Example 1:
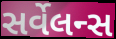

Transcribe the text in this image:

સર્વેલન્સ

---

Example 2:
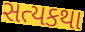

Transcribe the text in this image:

સત્યકથા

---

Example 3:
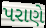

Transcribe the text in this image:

પરાણે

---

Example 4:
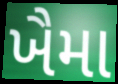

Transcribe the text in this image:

ખૈમા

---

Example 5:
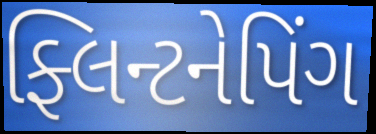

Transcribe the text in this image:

ફ્લિન્ટનેપિંગ